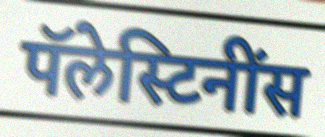
पॅलेस्टिनींस